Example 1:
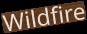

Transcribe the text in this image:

Wildfire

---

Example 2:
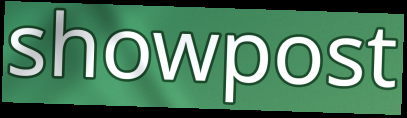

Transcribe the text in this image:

showpost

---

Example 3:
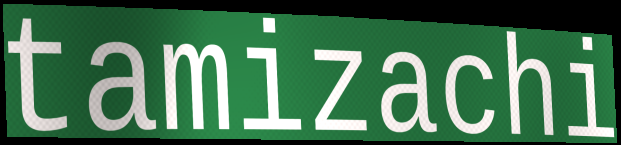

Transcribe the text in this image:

tamizachi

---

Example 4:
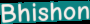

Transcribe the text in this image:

Bhishon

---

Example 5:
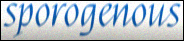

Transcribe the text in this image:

sporogenous